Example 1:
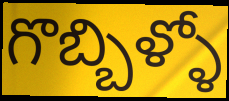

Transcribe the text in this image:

గొబ్బిళ్ళో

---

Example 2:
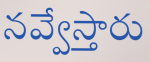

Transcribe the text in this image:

నవ్వేస్తారు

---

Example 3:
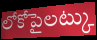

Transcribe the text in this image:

లోకోపైలట్కు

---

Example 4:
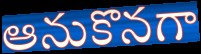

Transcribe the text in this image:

ఆనుకొనగా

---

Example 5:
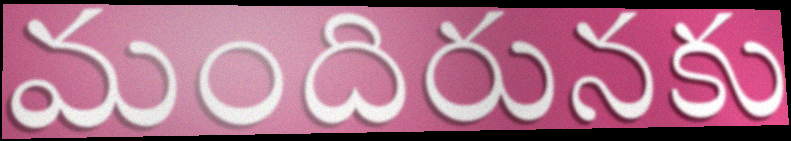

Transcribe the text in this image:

మందిరునకు